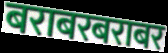
बराबरबराबर